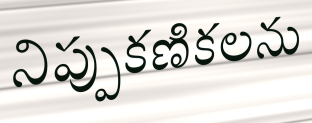
నిప్పుకణికలను